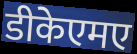
डीकेएमए